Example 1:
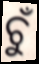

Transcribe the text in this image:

ଚୁଁ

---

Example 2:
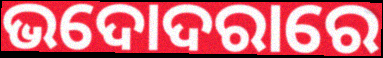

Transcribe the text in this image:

ଭଦୋଦରାରେ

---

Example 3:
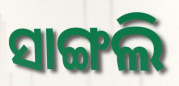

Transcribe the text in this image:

ସାଙ୍ଗଲି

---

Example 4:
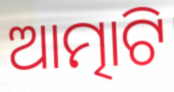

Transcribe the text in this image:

ଆତ୍ମାଟି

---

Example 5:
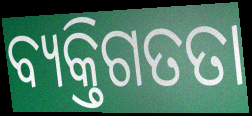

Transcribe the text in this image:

ବ୍ୟକ୍ତିଗତତା